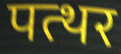
पत्‍थर